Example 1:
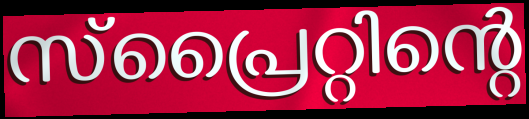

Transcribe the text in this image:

സ്പ്രൈറ്റിന്റെ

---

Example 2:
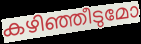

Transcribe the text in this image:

കഴിഞ്ഞീടുമോ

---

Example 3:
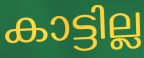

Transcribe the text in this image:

കാട്ടില്ല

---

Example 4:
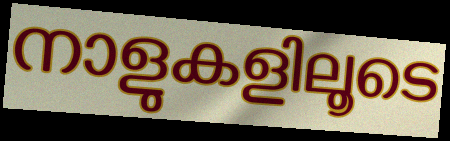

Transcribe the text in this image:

നാളുകളിലൂടെ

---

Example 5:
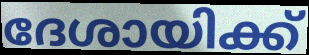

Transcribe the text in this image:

ദേശായിക്ക്